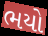
ભયો